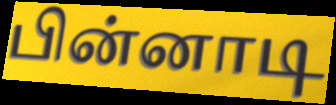
பின்னாடி